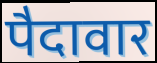
पैदावार